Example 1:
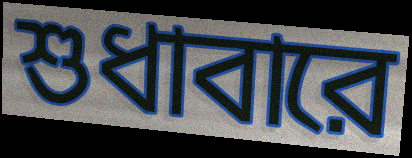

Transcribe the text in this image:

শুধাবারে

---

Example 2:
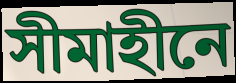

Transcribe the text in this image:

সীমাহীনে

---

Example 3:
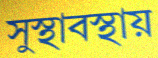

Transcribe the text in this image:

সুস্থাবস্থায়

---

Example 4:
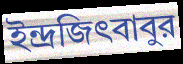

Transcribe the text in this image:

ইন্দ্রজিৎবাবুর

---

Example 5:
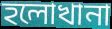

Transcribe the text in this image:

হলোখানা